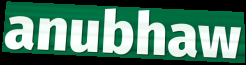
anubhaw